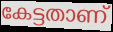
കേട്ടതാണ്